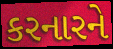
કરનારને